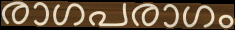
രാഗപരാഗം